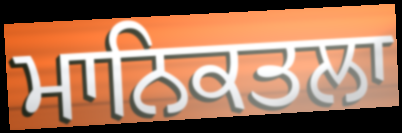
ਮਾਨਿਕਤਲਾ